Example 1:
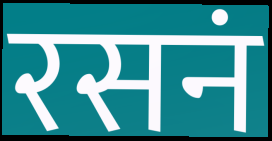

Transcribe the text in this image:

रसनं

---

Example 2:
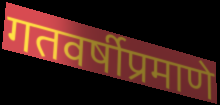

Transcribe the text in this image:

गतवर्षीप्रमाणे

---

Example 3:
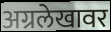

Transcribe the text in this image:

अग्रलेखावर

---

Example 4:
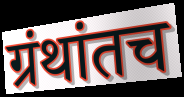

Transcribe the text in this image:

ग्रंथांतच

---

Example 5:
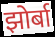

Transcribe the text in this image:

झोर्बा